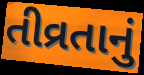
તીવ્રતાનું